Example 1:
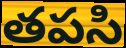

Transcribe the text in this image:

తపసి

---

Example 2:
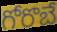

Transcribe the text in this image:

గోరొబే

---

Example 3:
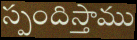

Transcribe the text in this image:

స్పందిస్తాము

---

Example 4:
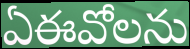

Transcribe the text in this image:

ఏఈవోలను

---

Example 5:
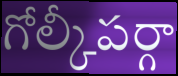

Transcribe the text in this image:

గోల్కీపర్గా